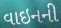
વાઇનની